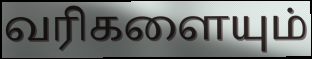
வரிகளையும்